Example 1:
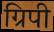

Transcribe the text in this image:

ग्रिपी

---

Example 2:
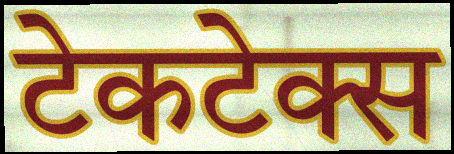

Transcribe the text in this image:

टेकटेक्स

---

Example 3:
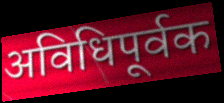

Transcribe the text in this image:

अविधिपूर्वक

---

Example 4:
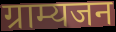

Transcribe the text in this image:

ग्राम्यजन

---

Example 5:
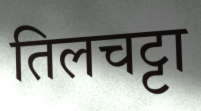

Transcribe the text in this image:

तिलचट्टा